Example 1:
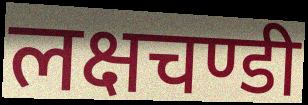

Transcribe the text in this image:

लक्षचण्डी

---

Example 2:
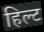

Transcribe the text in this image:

हिल्ट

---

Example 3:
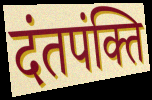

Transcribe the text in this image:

दंतपंक्ति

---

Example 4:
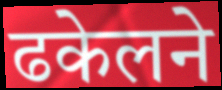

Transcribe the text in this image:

ढकेलने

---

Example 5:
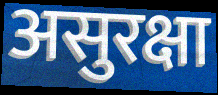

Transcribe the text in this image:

असुरक्षा